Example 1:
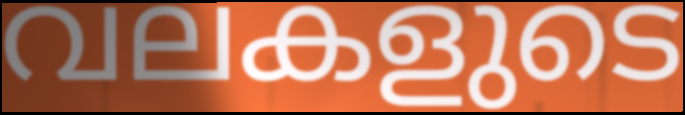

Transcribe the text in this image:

വലകളുടെ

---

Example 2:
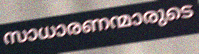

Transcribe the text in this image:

സാധാരണന്മാരുടെ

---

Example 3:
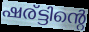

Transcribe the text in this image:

ഷര്ട്ടിന്റെ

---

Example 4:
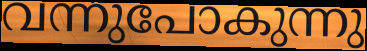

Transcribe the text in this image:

വന്നുപോകുന്നു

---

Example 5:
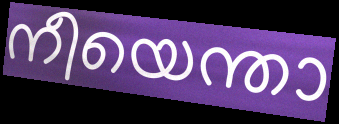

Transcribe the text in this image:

നീയെന്താ